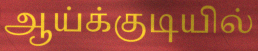
ஆய்க்குடியில்